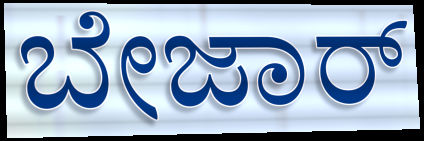
ಬೇಜಾರ್